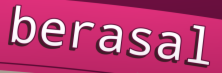
berasal